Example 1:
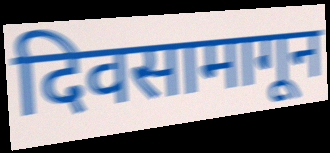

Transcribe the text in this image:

दिवसामागून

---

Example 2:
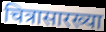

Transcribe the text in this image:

चित्रासारख्या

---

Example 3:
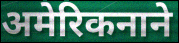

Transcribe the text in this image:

अमेरिकनाने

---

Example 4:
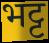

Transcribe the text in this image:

भट्ट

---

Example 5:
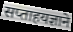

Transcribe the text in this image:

सप्ताहयज्ञाने